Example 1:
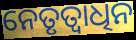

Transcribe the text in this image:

ନେତୃତ୍ୱାଧିନ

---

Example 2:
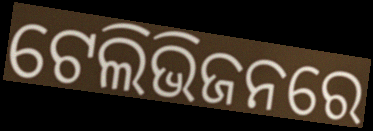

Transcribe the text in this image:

ଟେଲିଭିଜନରେ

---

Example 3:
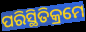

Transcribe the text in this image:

ପରିସ୍ଥିତିକ୍ରମେ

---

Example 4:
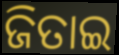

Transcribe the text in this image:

ଜିତାଇ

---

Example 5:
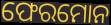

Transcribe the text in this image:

ଫେରମୋନ